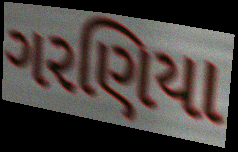
ગરણિયા